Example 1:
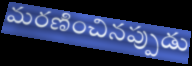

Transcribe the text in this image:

మరణించినప్పుడు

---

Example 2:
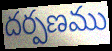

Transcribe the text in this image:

దర్పణము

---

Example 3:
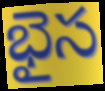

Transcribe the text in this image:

భైస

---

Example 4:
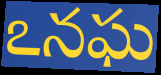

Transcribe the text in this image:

ఽనఘ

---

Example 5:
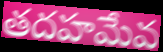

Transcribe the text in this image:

తదహమేవ